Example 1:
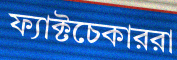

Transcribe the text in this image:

ফ্যাক্টচেকাররা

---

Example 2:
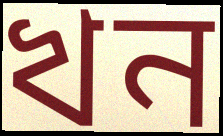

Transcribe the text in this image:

খন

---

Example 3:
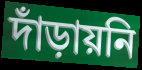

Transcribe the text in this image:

দাঁড়ায়নি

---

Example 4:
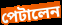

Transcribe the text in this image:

পেটালেন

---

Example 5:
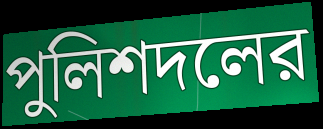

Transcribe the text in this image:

পুলিশদলের